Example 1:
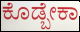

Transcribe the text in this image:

ಕೊಡ್ಬೇಕಾ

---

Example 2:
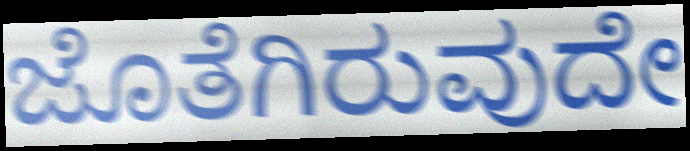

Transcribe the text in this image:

ಜೊತೆಗಿರುವುದೇ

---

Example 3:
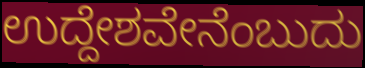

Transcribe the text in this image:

ಉದ್ದೇಶವೇನೆಂಬುದು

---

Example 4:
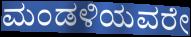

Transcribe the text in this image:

ಮಂಡಳಿಯವರೇ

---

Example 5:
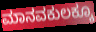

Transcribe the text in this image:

ಮಾನವಕುಲಕ್ಕೂ